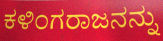
ಕಳಿಂಗರಾಜನನ್ನು